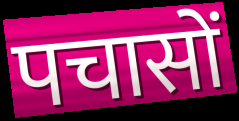
पचासों